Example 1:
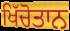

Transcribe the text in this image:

ਖਿੱਚੋਤਾਨ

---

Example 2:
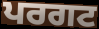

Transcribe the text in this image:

ਪਰਗਟ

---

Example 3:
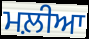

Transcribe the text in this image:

ਮਲ਼ੀਆ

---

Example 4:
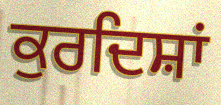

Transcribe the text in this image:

ਕੁਰਦਿਸ਼ਾਂ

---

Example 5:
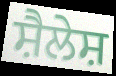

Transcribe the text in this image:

ਸ਼ੈਲੇਸ਼